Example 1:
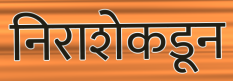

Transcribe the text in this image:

निराशेकडून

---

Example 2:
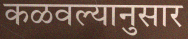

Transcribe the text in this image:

कळवल्यानुसार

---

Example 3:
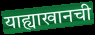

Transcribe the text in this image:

याह्याखानची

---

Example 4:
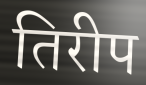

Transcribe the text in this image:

तिरीप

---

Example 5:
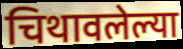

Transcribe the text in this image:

चिथावलेल्या